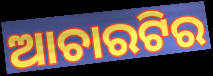
ଆଚାରଟିର